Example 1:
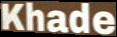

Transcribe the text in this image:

Khade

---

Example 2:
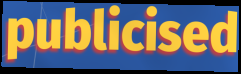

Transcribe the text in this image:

publicised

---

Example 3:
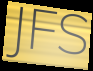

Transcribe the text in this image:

JFS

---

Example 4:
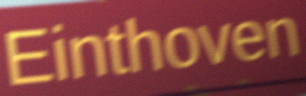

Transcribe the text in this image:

Einthoven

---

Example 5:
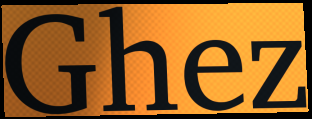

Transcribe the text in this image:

Ghez